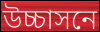
উচ্চাসনে